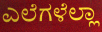
ಎಲೆಗಳೆಲ್ಲಾ